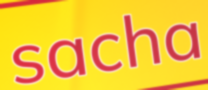
sacha